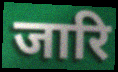
जारि